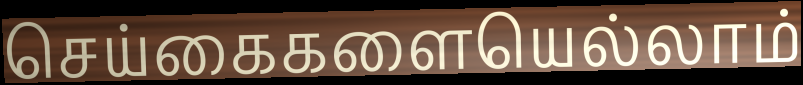
செய்கைகளையெல்லாம்